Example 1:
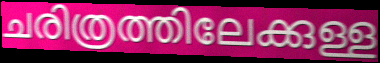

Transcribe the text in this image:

ചരിത്രത്തിലേക്കുള്ള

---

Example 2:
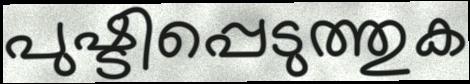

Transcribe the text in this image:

പുഷ്ടിപ്പെടുത്തുക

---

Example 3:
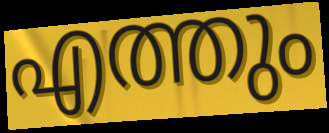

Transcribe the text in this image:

എത്തും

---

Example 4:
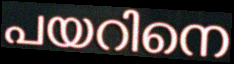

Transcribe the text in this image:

പയറിനെ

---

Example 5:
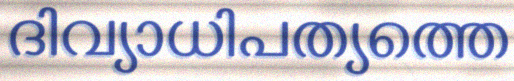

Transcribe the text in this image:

ദിവ്യാധിപത്യത്തെ